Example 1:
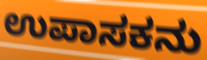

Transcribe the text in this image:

ಉಪಾಸಕನು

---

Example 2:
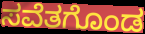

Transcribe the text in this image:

ಸವೆತಗೊಂಡ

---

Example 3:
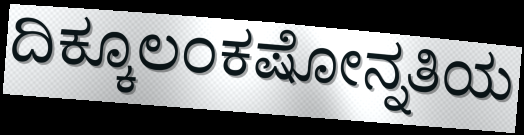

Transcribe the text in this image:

ದಿಕ್ಕೂಲಂಕಷೋನ್ನತಿಯ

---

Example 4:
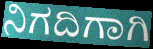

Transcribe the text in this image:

ನಿಗದಿಗಾಗಿ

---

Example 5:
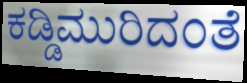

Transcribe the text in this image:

ಕಡ್ಡಿಮುರಿದಂತೆ